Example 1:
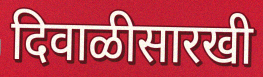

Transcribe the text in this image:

दिवाळीसारखी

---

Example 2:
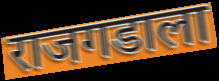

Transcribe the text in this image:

राजगडाला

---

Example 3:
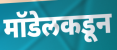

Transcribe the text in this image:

मॉडेलकडून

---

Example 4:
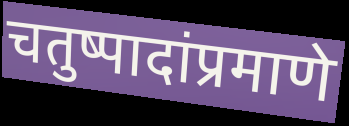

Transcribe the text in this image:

चतुष्पादांप्रमाणे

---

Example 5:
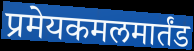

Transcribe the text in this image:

प्रमेयकमलमार्तंड